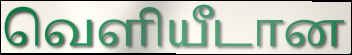
வெளியீடான